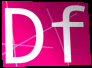
Df